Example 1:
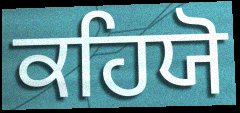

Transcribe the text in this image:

ਕਹਿਯੋ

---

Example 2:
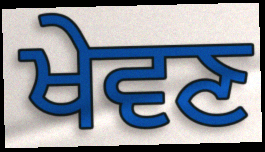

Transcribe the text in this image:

ਖੇਵਣ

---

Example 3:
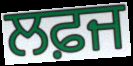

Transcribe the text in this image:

ਲਫ਼ਜ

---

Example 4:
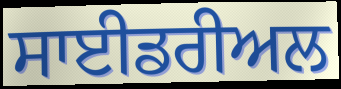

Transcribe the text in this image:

ਸਾਈਡਰੀਅਲ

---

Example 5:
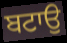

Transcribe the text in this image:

ਬਟਾਉ